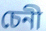
চেনী